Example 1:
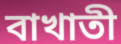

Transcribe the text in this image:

বাখাতী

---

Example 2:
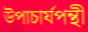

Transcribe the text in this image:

উপাচার্যপন্থী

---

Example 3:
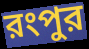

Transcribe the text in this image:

রংপুর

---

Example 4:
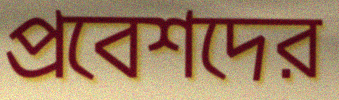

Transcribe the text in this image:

প্রবেশদের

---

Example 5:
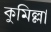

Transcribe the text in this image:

কুমিল্লা